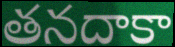
తనదాకా